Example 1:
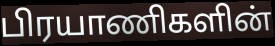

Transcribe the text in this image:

பிரயாணிகளின்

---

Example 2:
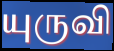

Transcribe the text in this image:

யுருவி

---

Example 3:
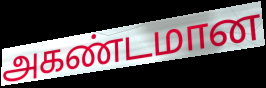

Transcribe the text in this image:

அகண்டமான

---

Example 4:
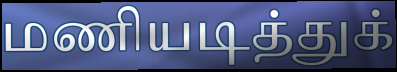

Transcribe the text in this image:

மணியடித்துக்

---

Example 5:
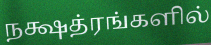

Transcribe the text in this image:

நக்ஷத்ரங்களில்